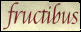
fructibus